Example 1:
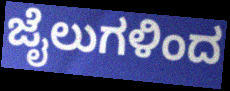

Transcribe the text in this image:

ಜೈಲುಗಳಿಂದ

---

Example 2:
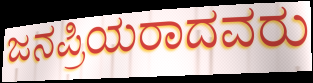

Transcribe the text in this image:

ಜನಪ್ರಿಯರಾದವರು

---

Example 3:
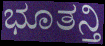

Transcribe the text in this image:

ಭೂತನ್ತಿ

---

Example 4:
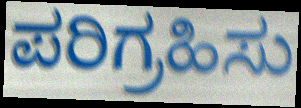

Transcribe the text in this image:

ಪರಿಗ್ರಹಿಸು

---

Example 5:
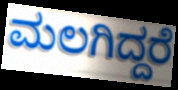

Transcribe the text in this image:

ಮಲಗಿದ್ದರೆ